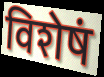
विशेषं